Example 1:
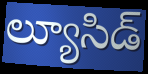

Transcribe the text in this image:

ల్యూసిడ్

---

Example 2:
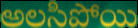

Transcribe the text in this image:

అలసిపోయి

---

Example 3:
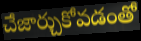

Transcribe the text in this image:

చేజార్చుకోవడంతో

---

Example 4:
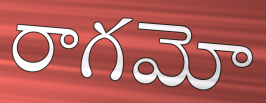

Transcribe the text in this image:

రాగమో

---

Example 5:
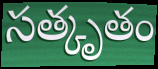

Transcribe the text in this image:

సత్కృతం